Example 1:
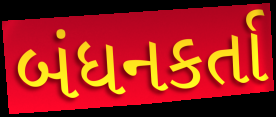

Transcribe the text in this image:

બંધનકર્તા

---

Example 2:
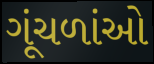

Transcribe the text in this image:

ગૂંચળાંઓ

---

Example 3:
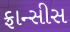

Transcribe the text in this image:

ફ્રાન્સીસ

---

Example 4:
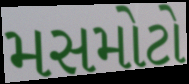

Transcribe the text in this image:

મસમોટો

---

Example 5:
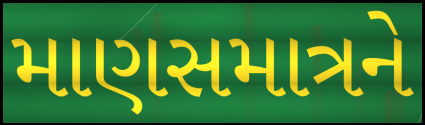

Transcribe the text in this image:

માણસમાત્રને